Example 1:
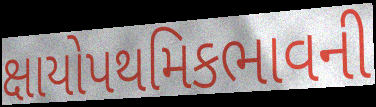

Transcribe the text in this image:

ક્ષાયોપથમિકભાવની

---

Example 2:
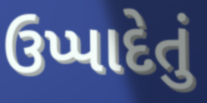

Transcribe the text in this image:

ઉપ્પાદેતું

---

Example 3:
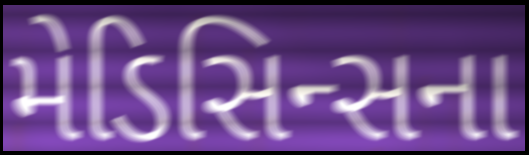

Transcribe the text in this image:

મેડિસિન્સના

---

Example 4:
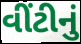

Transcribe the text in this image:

વીંટીનું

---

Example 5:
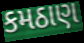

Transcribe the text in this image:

કમઠાણ